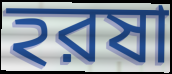
হরষা